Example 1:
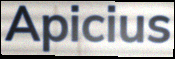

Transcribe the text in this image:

Apicius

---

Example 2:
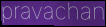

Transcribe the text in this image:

pravachan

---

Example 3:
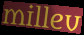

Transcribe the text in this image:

milleu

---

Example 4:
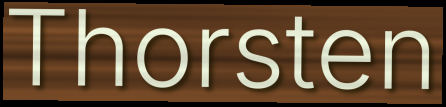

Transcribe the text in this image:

Thorsten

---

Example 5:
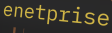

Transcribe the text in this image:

enetprise